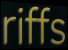
riffs